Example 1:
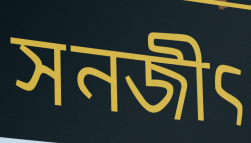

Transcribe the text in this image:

সনজীৎ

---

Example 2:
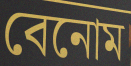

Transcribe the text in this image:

বেনোম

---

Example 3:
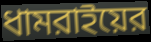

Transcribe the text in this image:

ধামরাইয়ের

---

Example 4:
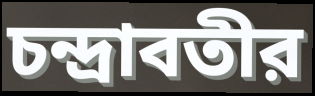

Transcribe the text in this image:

চন্দ্রাবতীর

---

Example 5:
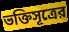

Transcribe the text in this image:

ভক্তিসূত্রের